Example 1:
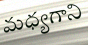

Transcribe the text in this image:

మధ్యగాని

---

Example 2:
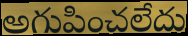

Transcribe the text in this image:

అగుపించలేదు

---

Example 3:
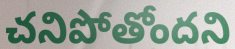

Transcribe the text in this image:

చనిపోతోందని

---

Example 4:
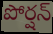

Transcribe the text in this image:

పోర్షన్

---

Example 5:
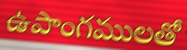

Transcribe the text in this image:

ఉపాంగములతో